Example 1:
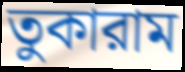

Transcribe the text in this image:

তুকারাম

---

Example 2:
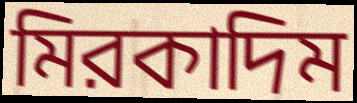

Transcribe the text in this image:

মিরকাদিম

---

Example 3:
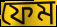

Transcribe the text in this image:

ফেম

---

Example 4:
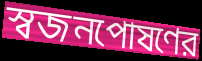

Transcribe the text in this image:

স্বজনপোষণের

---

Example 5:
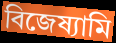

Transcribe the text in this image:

বিজেষ্যামি